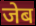
जेब